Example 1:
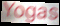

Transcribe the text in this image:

Yogas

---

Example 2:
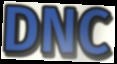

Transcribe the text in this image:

DNC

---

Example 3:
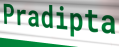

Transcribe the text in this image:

Pradipta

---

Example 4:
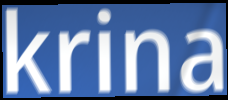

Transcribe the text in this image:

krina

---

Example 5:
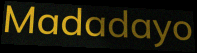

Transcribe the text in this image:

Madadayo